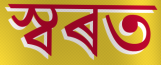
স্বৰত